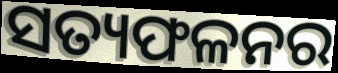
ସତ୍ୟଫଳନର